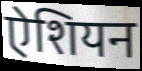
ऐशियन